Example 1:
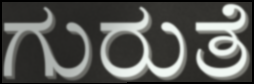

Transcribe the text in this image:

ಗುರುತೆ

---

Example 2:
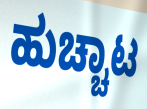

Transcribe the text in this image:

ಹುಚ್ಚಾಟ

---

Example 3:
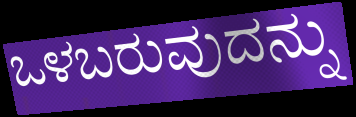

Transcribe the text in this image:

ಒಳಬರುವುದನ್ನು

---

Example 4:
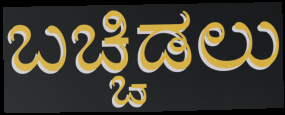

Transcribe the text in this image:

ಬಚ್ಚಿಡಲು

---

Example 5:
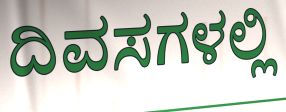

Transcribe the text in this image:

ದಿವಸಗಳಲ್ಲಿ